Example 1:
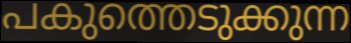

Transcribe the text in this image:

പകുത്തെടുക്കുന്ന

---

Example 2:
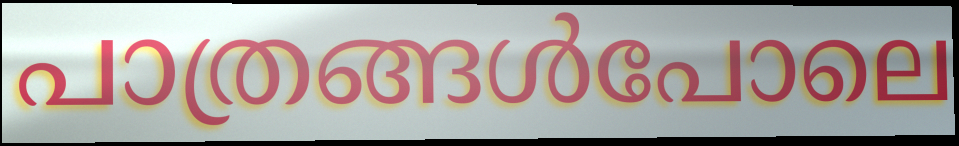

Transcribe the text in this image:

പാത്രങ്ങൾപോലെ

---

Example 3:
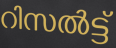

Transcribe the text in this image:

റിസൽട്ട്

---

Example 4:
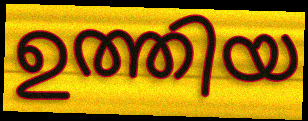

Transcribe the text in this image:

ഉത്തിയ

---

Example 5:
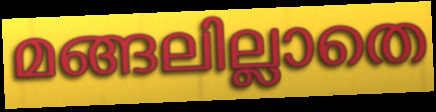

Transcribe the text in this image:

മങ്ങലില്ലാതെ